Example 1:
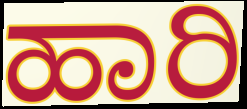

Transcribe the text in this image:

ಹಾರಿ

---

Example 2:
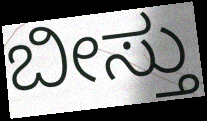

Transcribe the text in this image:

ಬೀಸ್ತು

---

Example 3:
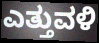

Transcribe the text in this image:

ಎತ್ತುವಳಿ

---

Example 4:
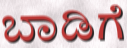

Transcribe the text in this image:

ಬಾಡಿಗೆ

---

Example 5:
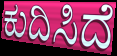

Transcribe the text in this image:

ಕುದಿಸಿದೆ